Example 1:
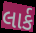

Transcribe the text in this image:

લાર્ક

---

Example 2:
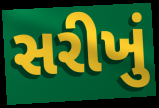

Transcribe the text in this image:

સરીખું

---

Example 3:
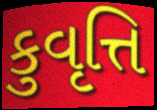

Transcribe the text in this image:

કુવૃત્તિ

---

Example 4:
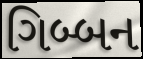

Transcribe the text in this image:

ગિબ્બન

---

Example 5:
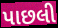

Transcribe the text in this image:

પાછલી